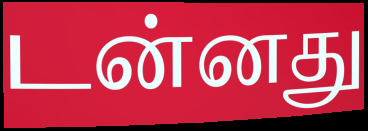
டன்னது